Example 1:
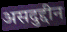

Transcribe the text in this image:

असदुद्दीन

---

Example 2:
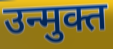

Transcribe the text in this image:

उन्मुक्त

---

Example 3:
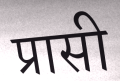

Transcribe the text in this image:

प्रासी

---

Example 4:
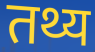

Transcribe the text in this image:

तथ्य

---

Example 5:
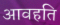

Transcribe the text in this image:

आवहति